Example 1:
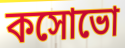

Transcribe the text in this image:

কসোভো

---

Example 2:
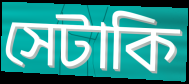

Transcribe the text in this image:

সেটাকি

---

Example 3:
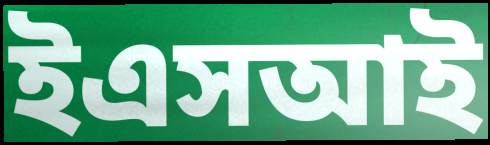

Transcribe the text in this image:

ইএসআই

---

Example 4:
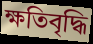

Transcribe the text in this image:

ক্ষতিবৃদ্ধি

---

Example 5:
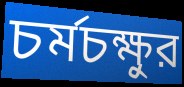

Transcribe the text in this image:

চর্মচক্ষুর